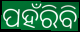
ପହଁରିବି